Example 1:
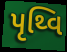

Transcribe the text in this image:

પૃથ્વિ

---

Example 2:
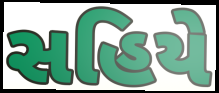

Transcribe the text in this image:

સહિયે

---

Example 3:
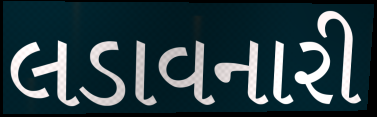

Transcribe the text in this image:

લડાવનારી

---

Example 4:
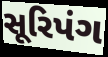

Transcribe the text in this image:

સૂરિપંગ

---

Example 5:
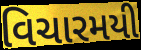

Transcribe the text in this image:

વિચારમયી